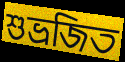
শুভ্রজিত